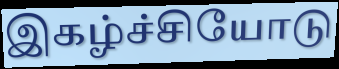
இகழ்ச்சியோடு